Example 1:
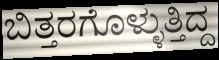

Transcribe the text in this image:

ಬಿತ್ತರಗೊಳ್ಳುತ್ತಿದ್ದ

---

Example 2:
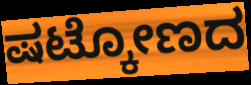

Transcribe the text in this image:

ಷಟ್ಕೋಣದ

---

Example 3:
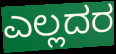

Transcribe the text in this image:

ಎಲ್ಲದರ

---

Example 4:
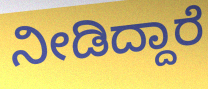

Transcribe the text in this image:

ನೀಡಿದ್ದಾರೆ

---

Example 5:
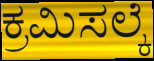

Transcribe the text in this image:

ಕ್ರಮಿಸಲ್ಕೆ